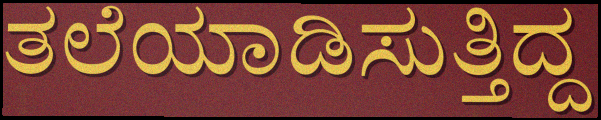
ತಲೆಯಾಡಿಸುತ್ತಿದ್ದ